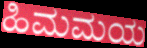
ಹಿಮಮಯ